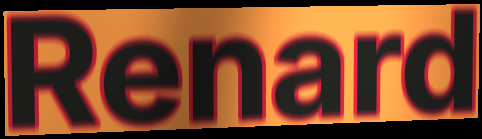
Renard